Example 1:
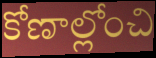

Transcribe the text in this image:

కోణాల్లోంచి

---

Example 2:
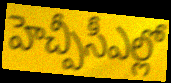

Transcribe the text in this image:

హెచ్పీసీఎల్లో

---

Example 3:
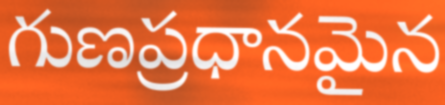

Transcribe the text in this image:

గుణప్రధానమైన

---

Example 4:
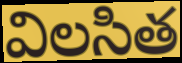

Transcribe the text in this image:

విలసిత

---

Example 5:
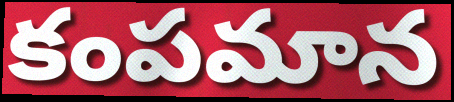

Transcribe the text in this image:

కంపమాన